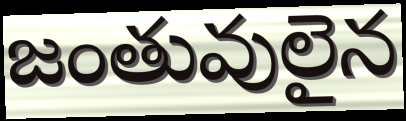
జంతువులైన